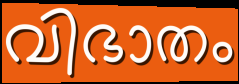
വിഭാതം